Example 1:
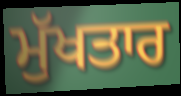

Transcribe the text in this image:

ਮੁੱਖਤਾਰ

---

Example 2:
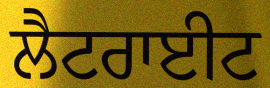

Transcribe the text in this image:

ਲੈਟਰਾਈਟ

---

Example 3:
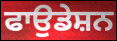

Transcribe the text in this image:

ਫਾਉਡੇਸ਼ਨ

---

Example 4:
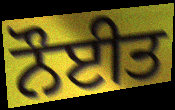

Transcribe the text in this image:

ਨੌਈਤ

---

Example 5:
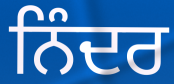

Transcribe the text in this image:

ਨਿੰਦਰ